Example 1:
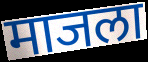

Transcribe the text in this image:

माजला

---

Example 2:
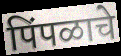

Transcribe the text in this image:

पिंपळाचे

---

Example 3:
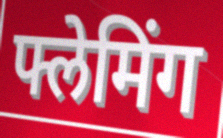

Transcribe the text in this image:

फ्लेमिंग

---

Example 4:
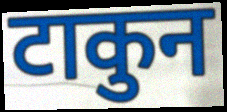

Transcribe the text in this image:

टाकुन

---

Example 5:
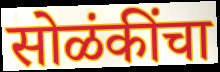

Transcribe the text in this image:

सोळंकींचा